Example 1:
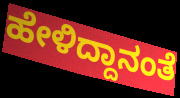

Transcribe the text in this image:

ಹೇಳಿದ್ದಾನಂತೆ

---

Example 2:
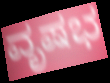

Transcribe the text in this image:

ವೃಷಭ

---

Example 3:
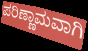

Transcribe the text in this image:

ಪರಿಣ್ಣಾಮವಾಗಿ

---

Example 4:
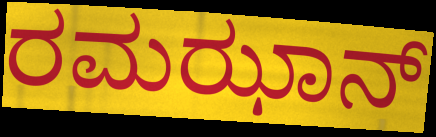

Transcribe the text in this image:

ರಮಝಾನ್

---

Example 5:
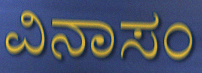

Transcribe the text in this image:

ವಿನಾಸಂ